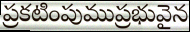
ప్రకటింపుముప్రభువైన